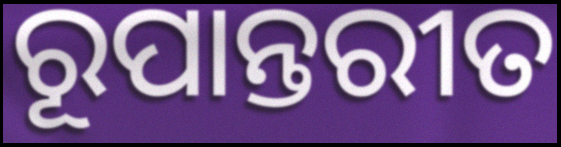
ରୂପାନ୍ତରୀତ